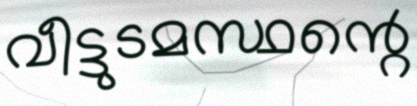
വീട്ടുടമസ്ഥന്റെ